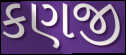
કણજી